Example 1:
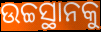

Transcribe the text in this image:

ଉଚ୍ଚସ୍ଥାନକୁ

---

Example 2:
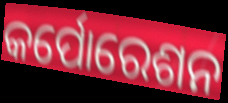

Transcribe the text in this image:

କର୍ପୋରେଶନ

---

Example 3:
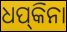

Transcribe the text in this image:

ଧପ୍‍କିନା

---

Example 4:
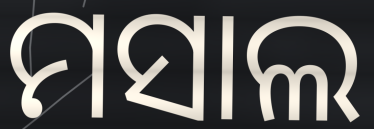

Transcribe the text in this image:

ମସାଲ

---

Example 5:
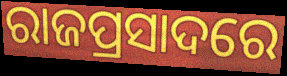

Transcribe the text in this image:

ରାଜପ୍ରସାଦରେ